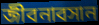
জীবনাবসান